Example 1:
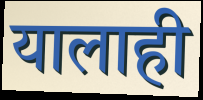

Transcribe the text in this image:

यालाही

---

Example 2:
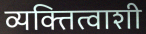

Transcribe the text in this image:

व्यक्तित्वाशी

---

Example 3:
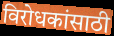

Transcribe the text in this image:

विरोधकांसाठी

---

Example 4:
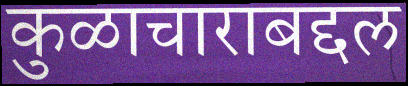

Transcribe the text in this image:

कुळाचाराबद्दल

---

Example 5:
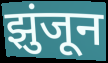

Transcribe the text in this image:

झुंजून